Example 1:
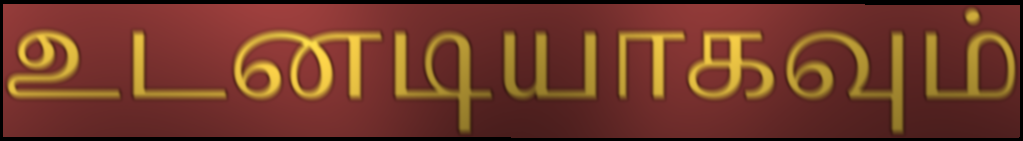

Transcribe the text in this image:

உடனடியாகவும்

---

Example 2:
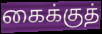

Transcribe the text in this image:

கைக்குத்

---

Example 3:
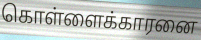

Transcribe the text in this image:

கொள்ளைக்காரனை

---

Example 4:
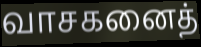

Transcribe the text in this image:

வாசகனைத்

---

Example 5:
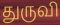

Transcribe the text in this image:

துருவி